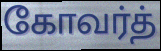
கோவர்த்